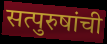
सत्पुरुषांची